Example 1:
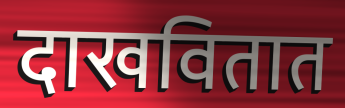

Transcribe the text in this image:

दाखवितात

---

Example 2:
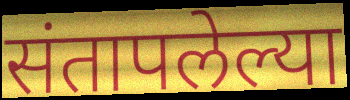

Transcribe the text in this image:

संतापलेल्या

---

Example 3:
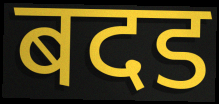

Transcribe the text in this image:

बदड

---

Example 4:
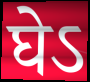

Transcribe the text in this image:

घेऽ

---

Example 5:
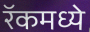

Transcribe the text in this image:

रॅकमध्ये